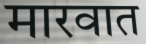
मारवात